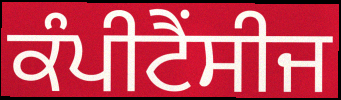
ਕੰਪੀਟੈਂਸੀਜ